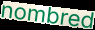
nombred